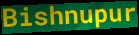
Bishnupur